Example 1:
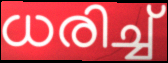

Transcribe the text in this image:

ധരിച്ച്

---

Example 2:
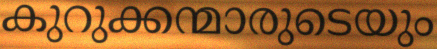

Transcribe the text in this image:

കുറുക്കന്മാരുടെയും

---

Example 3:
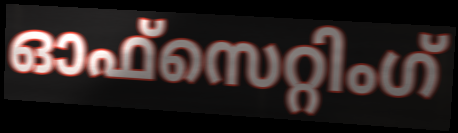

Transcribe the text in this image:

ഓഫ്സെറ്റിംഗ്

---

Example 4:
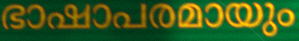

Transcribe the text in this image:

ഭാഷാപരമായും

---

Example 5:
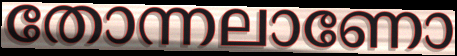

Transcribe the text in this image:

തോന്നലാണോ